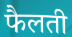
फैलती